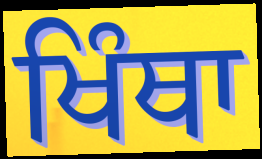
ਖਿੰਥਾ